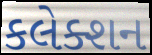
કલેક્શન